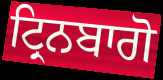
ਟ੍ਰਿਨਬਾਗੋ